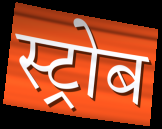
स्ट्रोब